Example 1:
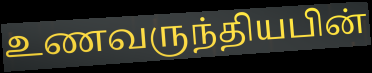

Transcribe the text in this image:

உணவருந்தியபின்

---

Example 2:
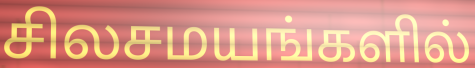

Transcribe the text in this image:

சிலசமயங்களில்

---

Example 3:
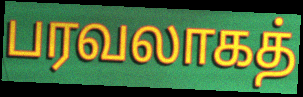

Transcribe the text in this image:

பரவலாகத்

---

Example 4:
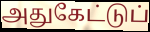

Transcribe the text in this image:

அதுகேட்டுப்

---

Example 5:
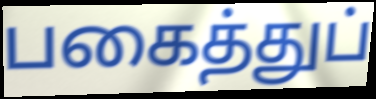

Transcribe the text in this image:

பகைத்துப்